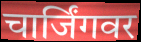
चार्जिंगवर